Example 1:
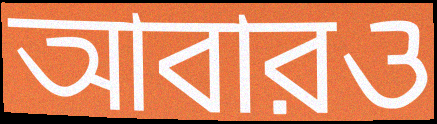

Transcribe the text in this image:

আবারও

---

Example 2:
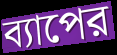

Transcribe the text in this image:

ব্যাপের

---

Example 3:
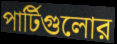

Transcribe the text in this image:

পার্টিগুলোর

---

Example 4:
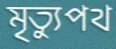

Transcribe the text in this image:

মৃত্যুপথ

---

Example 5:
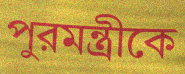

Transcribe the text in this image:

পুরমন্ত্রীকে